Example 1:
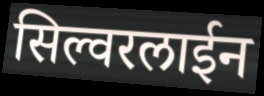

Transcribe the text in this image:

सिल्वरलाईन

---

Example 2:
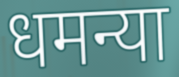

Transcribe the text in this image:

धमन्या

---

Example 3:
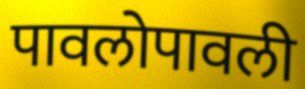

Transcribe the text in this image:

पावलोपावली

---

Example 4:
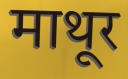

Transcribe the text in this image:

माथूर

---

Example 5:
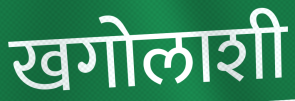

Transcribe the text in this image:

खगोलाशी